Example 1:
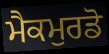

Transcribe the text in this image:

ਮੈਕਮੁਰਡੋ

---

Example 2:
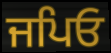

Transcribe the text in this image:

ਜਪਿਓ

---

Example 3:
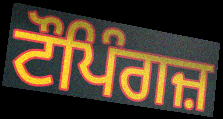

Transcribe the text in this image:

ਟੌਪਿੰਗਜ਼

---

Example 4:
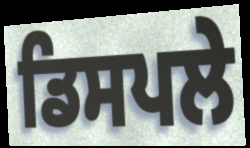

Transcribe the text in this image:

ਡਿਸਪਲੇ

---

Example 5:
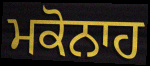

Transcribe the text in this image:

ਮਕੋਨਾਹ